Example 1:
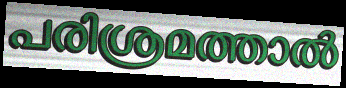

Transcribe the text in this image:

പരിശ്രമത്താൽ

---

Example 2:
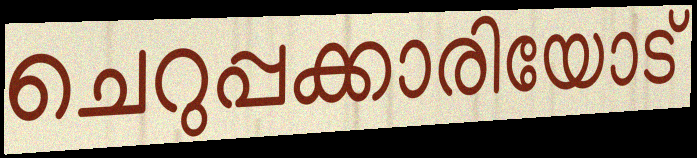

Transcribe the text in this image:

ചെറുപ്പക്കാരിയോട്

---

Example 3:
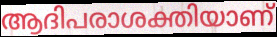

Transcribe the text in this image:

ആദിപരാശക്തിയാണ്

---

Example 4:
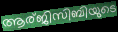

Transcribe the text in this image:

ആര്ജിസിബിയുടെ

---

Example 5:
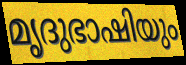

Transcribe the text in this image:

മൃദുഭാഷിയും